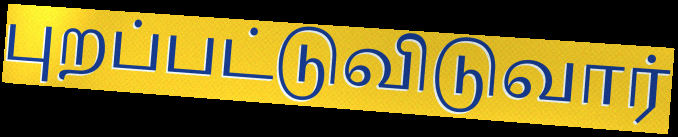
புறப்பட்டுவிடுவார்